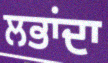
ਲਭਾਂਦਾ